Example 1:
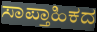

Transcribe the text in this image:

ಸಾಪ್ತಾಹಿಕದ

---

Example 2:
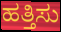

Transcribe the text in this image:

ಹತ್ತಿಸು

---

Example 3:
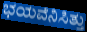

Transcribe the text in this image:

ಭಯವೆನಿಸಿತ್ತು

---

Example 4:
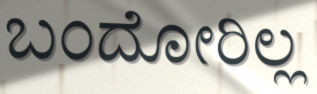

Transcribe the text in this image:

ಬಂದೋರಿಲ್ಲ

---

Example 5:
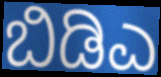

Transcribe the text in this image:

ಬಿಡಿಎ